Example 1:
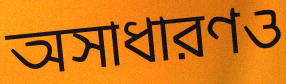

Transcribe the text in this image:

অসাধারণও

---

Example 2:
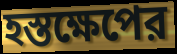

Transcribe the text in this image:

হস্তক্ষেপের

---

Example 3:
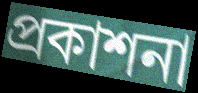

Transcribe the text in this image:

প্রকাশনা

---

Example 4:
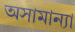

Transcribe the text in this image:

অসামান্যা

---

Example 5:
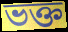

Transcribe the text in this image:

ভক্ত